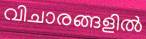
വിചാരങ്ങളിൽ